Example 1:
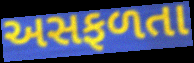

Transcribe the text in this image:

અસફળતા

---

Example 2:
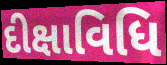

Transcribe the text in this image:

દીક્ષાવિધિ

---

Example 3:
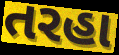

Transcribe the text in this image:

તરહા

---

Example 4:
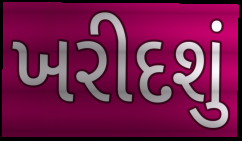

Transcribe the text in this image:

ખરીદશું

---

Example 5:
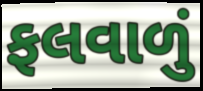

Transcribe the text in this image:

ફલવાળું